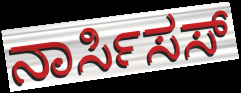
ನಾರ್ಸಿಸಸ್